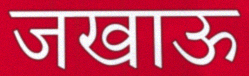
जखाऊ